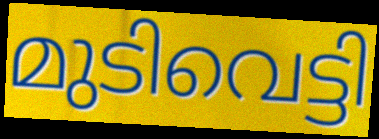
മുടിവെട്ടി